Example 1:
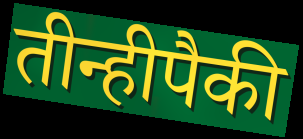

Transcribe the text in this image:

तीन्हीपैकी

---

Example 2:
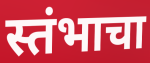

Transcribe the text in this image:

स्तंभाचा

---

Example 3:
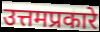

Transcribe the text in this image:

उत्तमप्रकारे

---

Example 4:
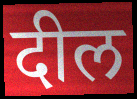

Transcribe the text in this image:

दील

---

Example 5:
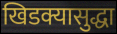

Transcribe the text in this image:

खिडक्यासुद्धा